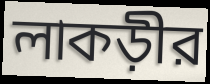
লাকড়ীর